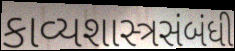
કાવ્યશાસ્ત્રસંબંધી